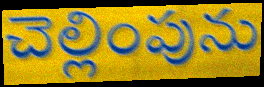
చెల్లింపును